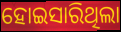
ହୋଇସାରିଥିଲା